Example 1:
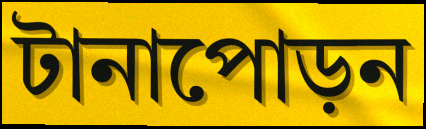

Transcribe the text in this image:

টানাপোড়ন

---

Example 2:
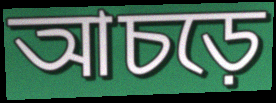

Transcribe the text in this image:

আচড়ে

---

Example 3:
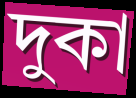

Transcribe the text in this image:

দুকা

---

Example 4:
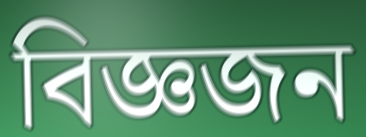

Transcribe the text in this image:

বিজ্ঞজন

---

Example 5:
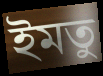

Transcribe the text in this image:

ইমতু